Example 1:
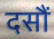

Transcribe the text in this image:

दसौं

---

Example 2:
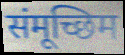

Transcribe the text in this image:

संमूच्छिम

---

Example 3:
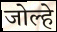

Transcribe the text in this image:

जोल्हे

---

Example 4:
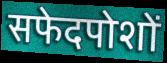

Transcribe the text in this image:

सफेदपोशों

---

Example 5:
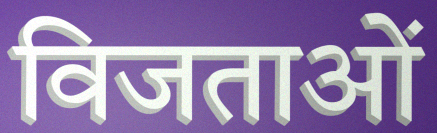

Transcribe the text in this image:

विजताओं